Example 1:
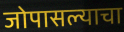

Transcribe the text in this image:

जोपासल्याचा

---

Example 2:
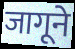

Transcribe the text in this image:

जागूने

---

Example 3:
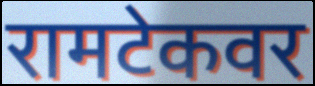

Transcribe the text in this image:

रामटेकवर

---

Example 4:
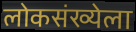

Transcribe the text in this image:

लोकसंख्येला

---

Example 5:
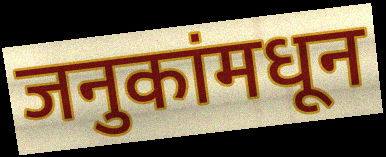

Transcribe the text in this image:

जनुकांमधून